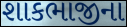
શાકભાજીના